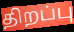
திறப்பு